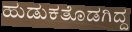
ಹುಡುಕತೊಡಗಿದ್ದ